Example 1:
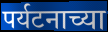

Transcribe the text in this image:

पर्यटनाच्या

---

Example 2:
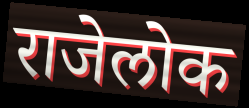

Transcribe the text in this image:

राजेलोक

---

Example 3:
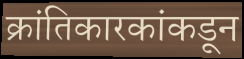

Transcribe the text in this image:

क्रांतिकारकांकडून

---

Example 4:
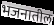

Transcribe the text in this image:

भजनातील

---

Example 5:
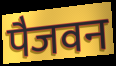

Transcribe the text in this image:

पैजवन